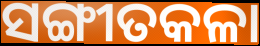
ସଙ୍ଗୀତକଳା